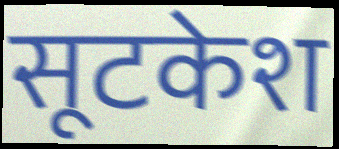
सूटकेश